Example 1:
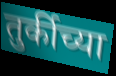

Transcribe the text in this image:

तुर्कीच्या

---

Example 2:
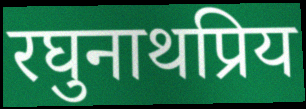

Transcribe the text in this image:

रघुनाथप्रिय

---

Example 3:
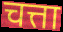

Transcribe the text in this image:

चत्ता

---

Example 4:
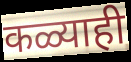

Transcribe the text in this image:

कळ्याही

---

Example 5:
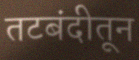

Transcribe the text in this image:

तटबंदीतून